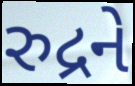
રુદ્રને